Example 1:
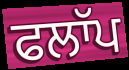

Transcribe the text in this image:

ਫਲਾੱਪ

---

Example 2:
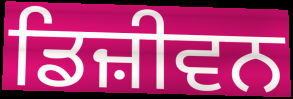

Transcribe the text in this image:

ਡਿਜ਼ੀਵਨ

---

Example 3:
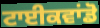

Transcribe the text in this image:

ਟਾਈਕਵਾਂਡੋ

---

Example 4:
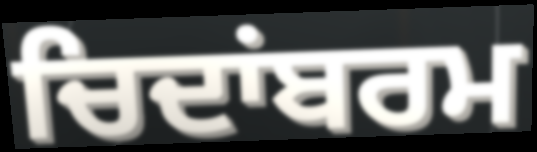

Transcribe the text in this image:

ਚਿਦਾਂਬਰਮ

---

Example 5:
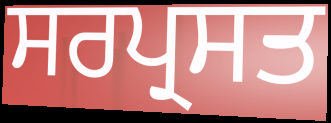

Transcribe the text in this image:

ਸਰਪ੍ਰਸਤ